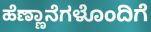
ಹೆಣ್ಣಾನೆಗಳೊಂದಿಗೆ